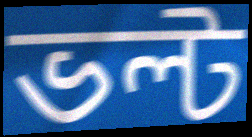
ভল্ট